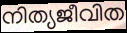
നിത്യജീവിത